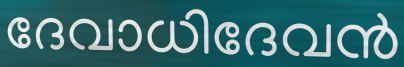
ദേവാധിദേവൻ